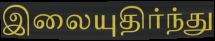
இலையுதிர்ந்து